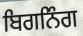
ਬਿਗਨਿੰਗ